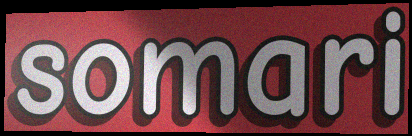
somari